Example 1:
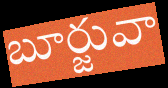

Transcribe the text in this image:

బూర్జువా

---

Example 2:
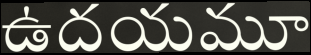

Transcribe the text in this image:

ఉదయమూ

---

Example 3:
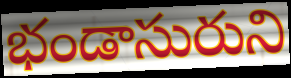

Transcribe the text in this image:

భండాసురుని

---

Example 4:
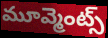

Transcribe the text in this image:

మూవ్మెంట్స్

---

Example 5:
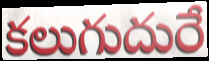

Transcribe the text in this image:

కలుగుదురే